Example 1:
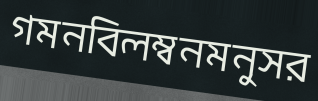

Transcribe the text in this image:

গমনবিলম্বনমনুসর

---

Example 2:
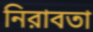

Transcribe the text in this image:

নিরাবতা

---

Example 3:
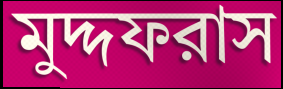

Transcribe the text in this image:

মুদ্দফরাস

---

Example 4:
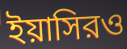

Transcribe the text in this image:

ইয়াসিরও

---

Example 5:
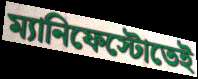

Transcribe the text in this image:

ম্যানিফেস্টোতেই